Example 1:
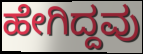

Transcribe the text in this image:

ಹೇಗಿದ್ದವು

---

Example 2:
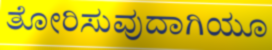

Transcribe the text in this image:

ತೋರಿಸುವುದಾಗಿಯೂ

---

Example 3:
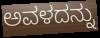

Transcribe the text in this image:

ಅವಳದನ್ನು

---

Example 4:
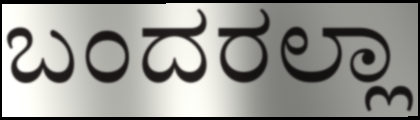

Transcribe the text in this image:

ಬಂದರಲ್ಲಾ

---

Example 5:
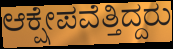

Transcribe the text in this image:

ಆಕ್ಷೇಪವೆತ್ತಿದ್ದರು